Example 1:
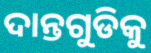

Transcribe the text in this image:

ଦାନ୍ତଗୁଡିକୁ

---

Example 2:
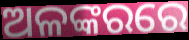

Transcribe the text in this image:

ଅଳଙ୍କରରେ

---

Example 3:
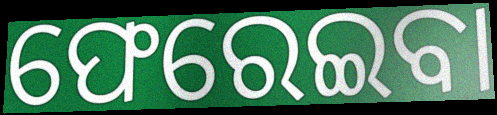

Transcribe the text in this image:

ଫେରେଇବା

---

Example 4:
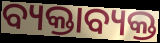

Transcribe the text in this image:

ବ୍ୟକ୍ତାବ୍ୟକ୍ତ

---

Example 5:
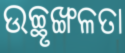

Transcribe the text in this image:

ଉଚ୍ଛୃଙ୍ଖଳତା